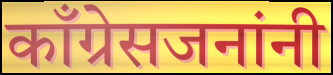
काँग्रेसजनांनी